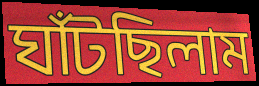
ঘাঁটছিলাম